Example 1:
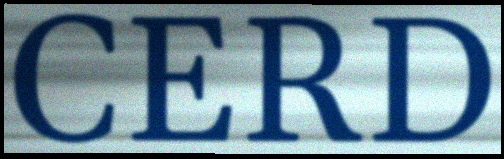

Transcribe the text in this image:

CERD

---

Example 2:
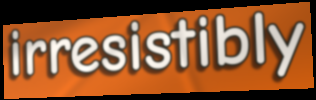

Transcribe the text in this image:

irresistibly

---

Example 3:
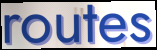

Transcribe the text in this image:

routes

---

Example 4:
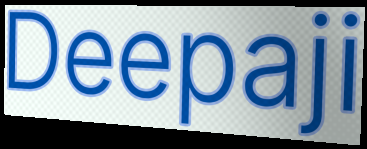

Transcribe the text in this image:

Deepaji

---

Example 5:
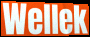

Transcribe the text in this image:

Wellek